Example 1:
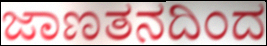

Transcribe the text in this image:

ಜಾಣತನದಿಂದ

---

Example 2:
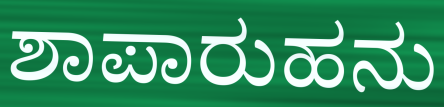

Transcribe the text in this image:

ಶಾಪಾರುಹನು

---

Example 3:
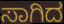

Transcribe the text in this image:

ಸಾಗಿದ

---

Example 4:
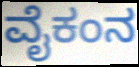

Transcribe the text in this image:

ವೈಕಂನ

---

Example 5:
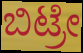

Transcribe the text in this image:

ಬಿಟ್ರೇ